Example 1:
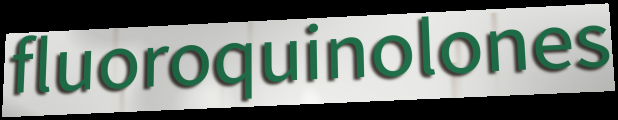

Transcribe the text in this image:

fluoroquinolones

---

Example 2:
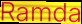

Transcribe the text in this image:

Ramda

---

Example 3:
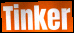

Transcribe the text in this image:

Tinker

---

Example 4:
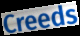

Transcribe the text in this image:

Creeds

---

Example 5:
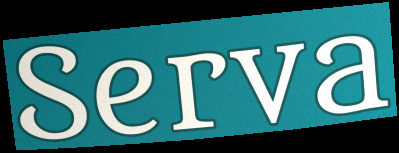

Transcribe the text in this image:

Serva